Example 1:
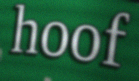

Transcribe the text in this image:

hoof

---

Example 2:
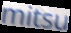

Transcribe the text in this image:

mitsu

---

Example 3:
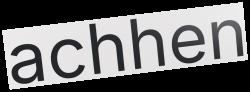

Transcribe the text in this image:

achhen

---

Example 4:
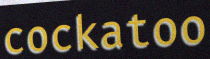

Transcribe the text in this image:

cockatoo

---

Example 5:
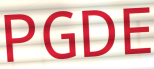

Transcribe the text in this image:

PGDE